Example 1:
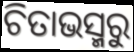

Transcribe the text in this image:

ଚିତାଭସ୍ମରୁ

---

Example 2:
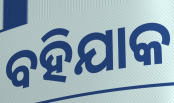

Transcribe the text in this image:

ବହିଯାକ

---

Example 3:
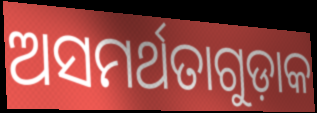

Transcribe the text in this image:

ଅସମର୍ଥତାଗୁଡ଼ାକ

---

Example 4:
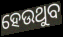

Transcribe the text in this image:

ହେଉଥୁବ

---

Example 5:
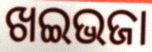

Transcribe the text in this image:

ଖଇଭଜା